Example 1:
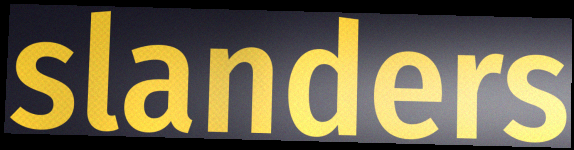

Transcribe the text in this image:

slanders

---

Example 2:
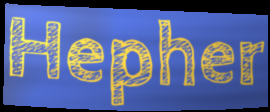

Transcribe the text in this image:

Hepher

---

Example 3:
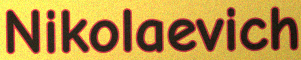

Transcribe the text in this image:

Nikolaevich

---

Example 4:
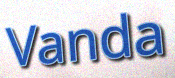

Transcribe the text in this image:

Vanda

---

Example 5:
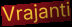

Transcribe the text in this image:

Vrajanti